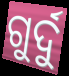
ଗୁର୍ଦୁ